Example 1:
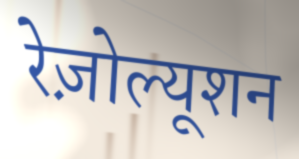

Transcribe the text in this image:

रेज़ोल्यूशन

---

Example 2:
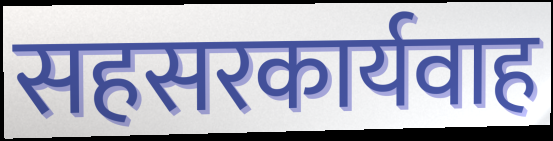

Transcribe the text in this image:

सहसरकार्यवाह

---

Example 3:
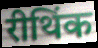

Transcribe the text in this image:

रीथिंक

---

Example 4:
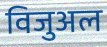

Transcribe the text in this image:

विजुअल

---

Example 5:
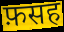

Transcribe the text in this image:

फ़सह